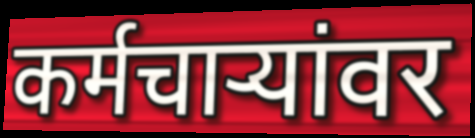
कर्मचाऱ्यांवर